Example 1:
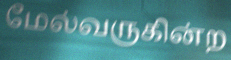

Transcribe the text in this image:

மேல்வருகின்ற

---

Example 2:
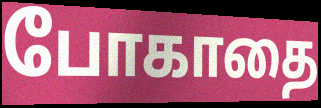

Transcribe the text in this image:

போகாதை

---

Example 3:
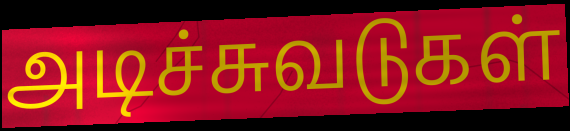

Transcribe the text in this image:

அடிச்சுவடுகள்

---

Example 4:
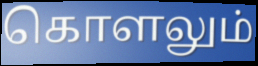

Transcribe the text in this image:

கொளலும்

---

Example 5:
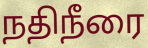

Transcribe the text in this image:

நதிநீரை